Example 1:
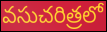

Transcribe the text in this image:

వసుచరిత్రలో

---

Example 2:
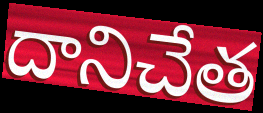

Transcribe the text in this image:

దానిచేత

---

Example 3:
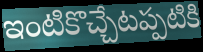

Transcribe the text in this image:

ఇంటికొచ్చేటప్పటికి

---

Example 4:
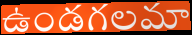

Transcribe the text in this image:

ఉండగలమా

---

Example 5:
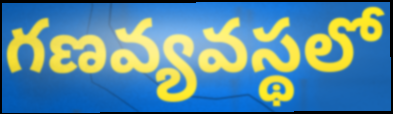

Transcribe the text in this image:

గణవ్యవస్థలో